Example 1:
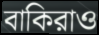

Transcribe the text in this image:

বাকিরাও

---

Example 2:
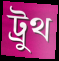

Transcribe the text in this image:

ট্রুথ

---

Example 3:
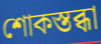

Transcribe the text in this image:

শোকস্তব্ধা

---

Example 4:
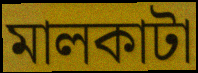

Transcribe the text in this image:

মালকাটা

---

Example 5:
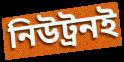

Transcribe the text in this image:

নিউট্রনই